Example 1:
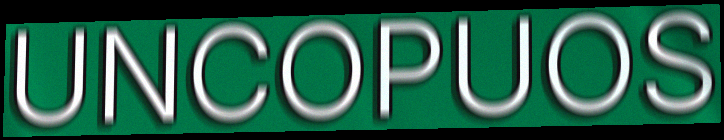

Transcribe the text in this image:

UNCOPUOS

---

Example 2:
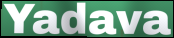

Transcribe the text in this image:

Yadava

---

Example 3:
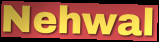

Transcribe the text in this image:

Nehwal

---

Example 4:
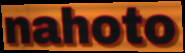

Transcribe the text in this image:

nahoto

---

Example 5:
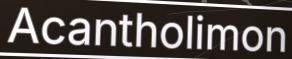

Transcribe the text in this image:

Acantholimon